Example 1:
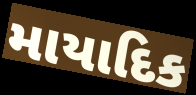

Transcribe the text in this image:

માયાદિક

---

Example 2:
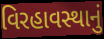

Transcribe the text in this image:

વિરહાવસ્થાનું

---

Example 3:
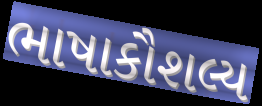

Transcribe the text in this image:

ભાષાકૌશલ્ય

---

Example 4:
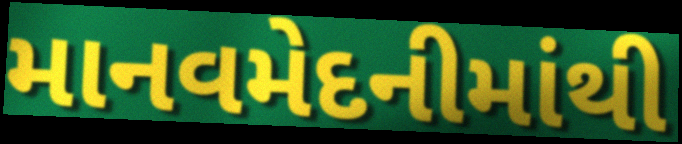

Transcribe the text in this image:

માનવમેદનીમાંથી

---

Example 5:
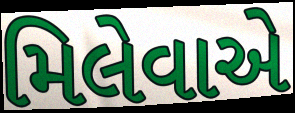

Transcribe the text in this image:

મિલેવાએ